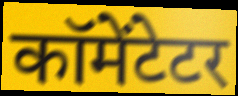
कॉमेंटेटर